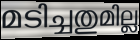
മടിച്ചതുമില്ല